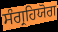
ਸੰਗ੍ਰਹਿਯੋਗ